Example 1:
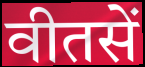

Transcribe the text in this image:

वीतसें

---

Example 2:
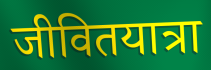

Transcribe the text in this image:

जीवितयात्रा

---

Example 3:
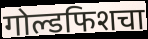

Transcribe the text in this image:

गोल्डफिशचा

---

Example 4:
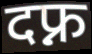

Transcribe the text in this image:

दफ्न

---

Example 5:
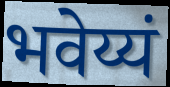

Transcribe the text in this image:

भवेय्यं